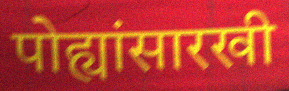
पोह्यांसारखी